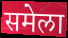
समेला